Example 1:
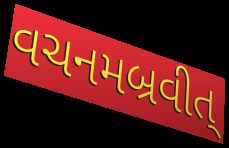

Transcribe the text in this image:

વચનમબ્રવીત્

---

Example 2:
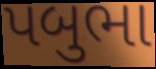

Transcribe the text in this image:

પબુભા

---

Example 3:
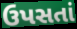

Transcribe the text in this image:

ઉપસતાં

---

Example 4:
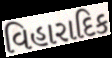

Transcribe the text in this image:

વિહારાદિક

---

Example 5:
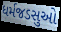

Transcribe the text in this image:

ધર્મજડસુઓ